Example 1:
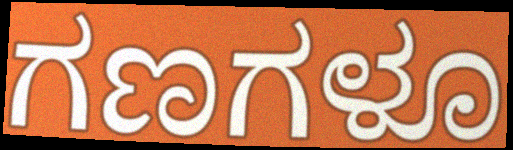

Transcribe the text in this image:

ಗಣಗಳೂ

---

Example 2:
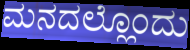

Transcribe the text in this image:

ಮನದಲ್ಲೊಂದು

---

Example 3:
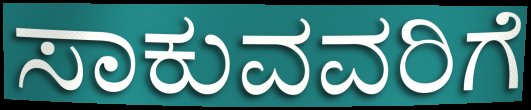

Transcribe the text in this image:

ಸಾಕುವವರಿಗೆ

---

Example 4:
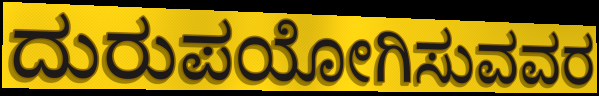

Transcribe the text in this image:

ದುರುಪಯೋಗಿಸುವವರ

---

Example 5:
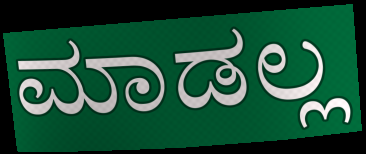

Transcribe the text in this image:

ಮಾಡಲ್ಲ